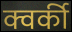
क्वर्की